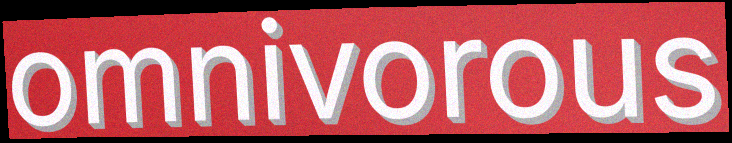
omnivorous